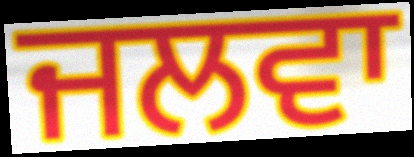
ਜਲਵਾ